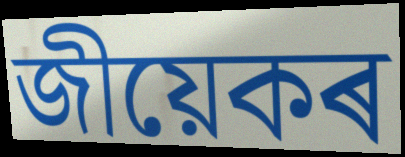
জীয়েকৰ